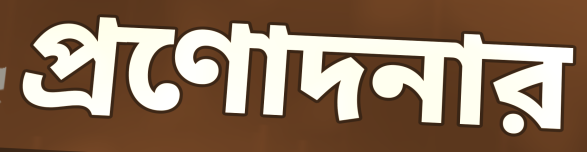
প্রণোদনার